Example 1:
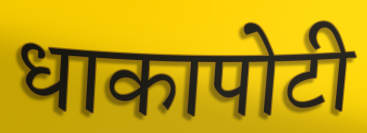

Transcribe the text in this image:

धाकापोटी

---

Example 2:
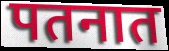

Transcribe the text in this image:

पतनात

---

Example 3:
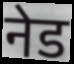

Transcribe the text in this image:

नेड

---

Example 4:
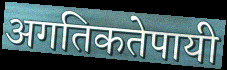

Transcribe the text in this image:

अगतिकतेपायी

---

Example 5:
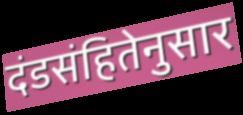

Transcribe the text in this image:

दंडसंहितेनुसार